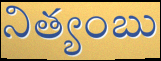
నిత్యంబు